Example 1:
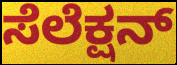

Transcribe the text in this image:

ಸೆಲೆಕ್ಷನ್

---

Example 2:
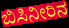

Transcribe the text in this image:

ಬಿಸಿನೀರಿನ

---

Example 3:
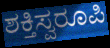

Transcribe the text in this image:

ಶಕ್ತಿಸ್ವರೂಪಿ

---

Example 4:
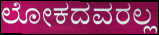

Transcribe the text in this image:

ಲೋಕದವರಲ್ಲ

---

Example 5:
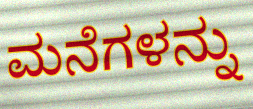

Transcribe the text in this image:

ಮನೆಗಳನ್ನು